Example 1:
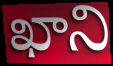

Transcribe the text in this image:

ఖాని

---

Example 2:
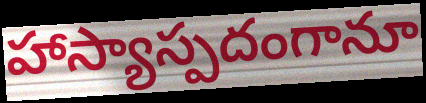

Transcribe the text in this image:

హాస్యాస్పదంగానూ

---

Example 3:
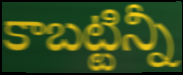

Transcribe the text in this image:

కాబట్టిన్నీ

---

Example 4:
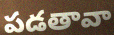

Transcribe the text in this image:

పడతావా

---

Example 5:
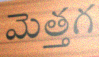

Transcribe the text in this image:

మెత్తగ